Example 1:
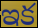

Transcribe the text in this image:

ఇక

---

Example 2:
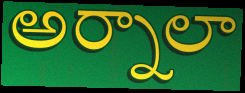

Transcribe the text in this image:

అర్నాలా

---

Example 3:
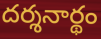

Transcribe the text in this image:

దర్శనార్థం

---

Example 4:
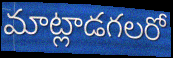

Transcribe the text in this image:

మాట్లాడగలరో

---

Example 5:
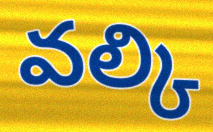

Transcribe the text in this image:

వల్కి